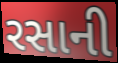
રસાની